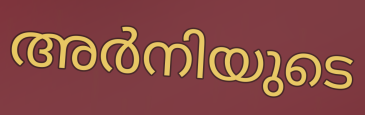
അർനിയുടെ